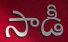
సాడీ